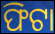
ଫିଟା